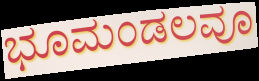
ಭೂಮಂಡಲವೂ